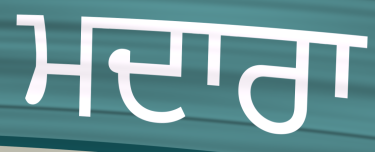
ਮਦਾਰਾ